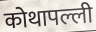
कोथापल्ली